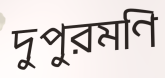
দুপুরমণি